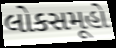
લોકસમૂહો